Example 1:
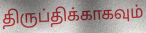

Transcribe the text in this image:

திருப்திக்காகவும்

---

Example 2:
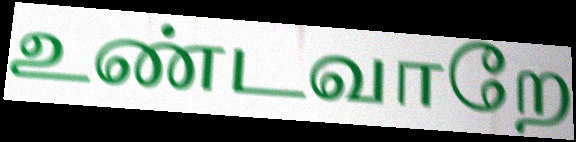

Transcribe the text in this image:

உண்டவாறே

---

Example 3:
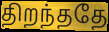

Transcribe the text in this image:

திறந்ததே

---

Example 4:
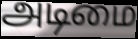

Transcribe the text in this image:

அடிமை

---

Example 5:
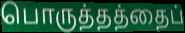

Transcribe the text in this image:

பொருத்தத்தைப்